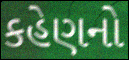
કહેણનો